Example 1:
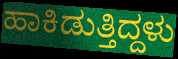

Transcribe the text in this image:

ಹಾಕಿಡುತ್ತಿದ್ದಳು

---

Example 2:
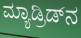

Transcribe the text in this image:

ಮ್ಯಾಡ್ರಿಡ್‌ನ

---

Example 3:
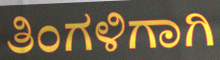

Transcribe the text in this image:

ತಿಂಗಳಿಗಾಗಿ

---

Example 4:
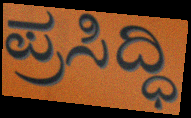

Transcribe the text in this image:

ಪ್ರಸಿದ್ಧಿ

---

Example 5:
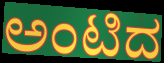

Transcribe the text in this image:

ಅಂಟಿದ